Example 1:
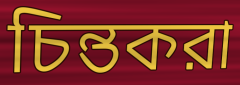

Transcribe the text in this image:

চিন্তকরা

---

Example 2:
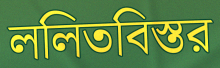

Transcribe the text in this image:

ললিতবিস্তর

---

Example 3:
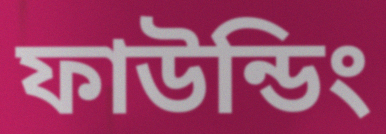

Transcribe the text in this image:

ফাউন্ডিং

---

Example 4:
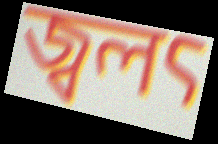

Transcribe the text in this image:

জ্বলৎ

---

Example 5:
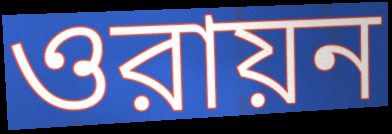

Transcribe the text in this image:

ওরায়ন